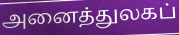
அனைத்துலகப்